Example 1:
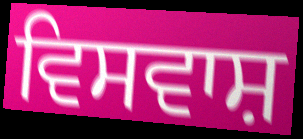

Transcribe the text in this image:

ਵਿਸਵਾਸ਼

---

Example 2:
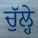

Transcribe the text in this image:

ਚੁੱਲ੍ਹੇ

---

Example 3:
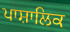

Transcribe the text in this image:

ਪਾਸ਼ਾਲਿਕ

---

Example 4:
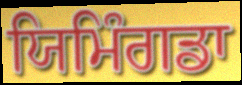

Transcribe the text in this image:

ਯਿਮਿੰਗਡਾ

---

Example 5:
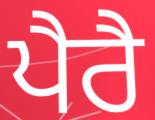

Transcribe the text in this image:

ਪੈਰੈ